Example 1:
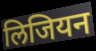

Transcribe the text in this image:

लिजियन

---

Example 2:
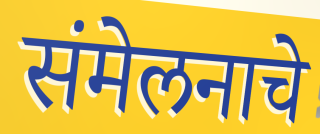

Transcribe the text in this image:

संमेलनाचे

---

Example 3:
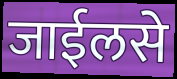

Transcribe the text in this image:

जाईलसे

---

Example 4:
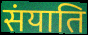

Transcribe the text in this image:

संयाति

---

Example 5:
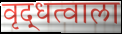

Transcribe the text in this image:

वृद्धत्वाला